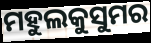
ମହୁଲକୁସୁମର